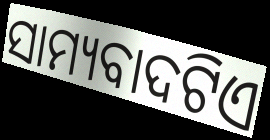
ସାମ୍ୟବାଦଟିଏ